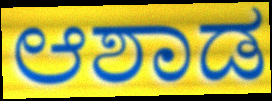
ಆಶಾಡ